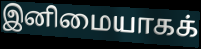
இனிமையாகக்